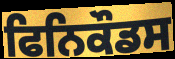
ਫਿਨਿਕੌਡਸ